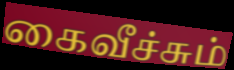
கைவீச்சும்